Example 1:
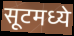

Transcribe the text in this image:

सूटमध्ये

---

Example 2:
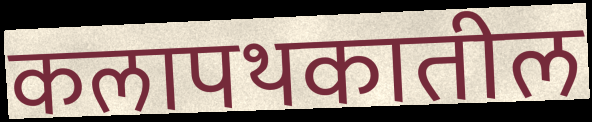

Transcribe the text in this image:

कलापथकातील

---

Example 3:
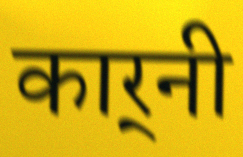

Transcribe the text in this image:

कार्नी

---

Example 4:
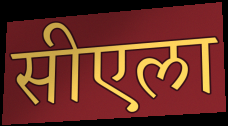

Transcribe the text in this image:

सीएला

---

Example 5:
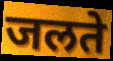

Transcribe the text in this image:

जलते